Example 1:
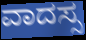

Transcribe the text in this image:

ವಾದಸ್ಸ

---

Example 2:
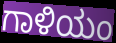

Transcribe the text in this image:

ಗಾಳಿಯಂ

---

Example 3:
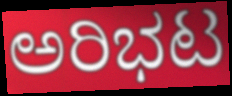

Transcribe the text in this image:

ಅರಿಭಟ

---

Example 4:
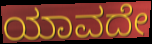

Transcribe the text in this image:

ಯಾವದೇ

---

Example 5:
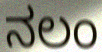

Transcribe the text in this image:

ನಲಂ